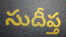
సుదీప్త